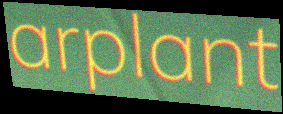
arplant